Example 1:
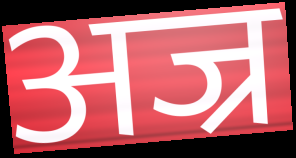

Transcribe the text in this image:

अज्र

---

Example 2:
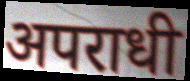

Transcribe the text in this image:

अपराधी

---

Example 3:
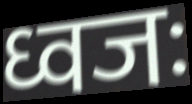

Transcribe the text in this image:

ध्वजः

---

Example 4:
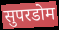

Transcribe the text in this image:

सुपरडोम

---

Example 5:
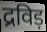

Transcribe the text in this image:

द्रविड़